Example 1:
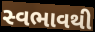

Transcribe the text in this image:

સ્વભાવથી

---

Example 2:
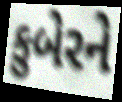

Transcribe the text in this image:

કુબેરને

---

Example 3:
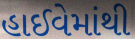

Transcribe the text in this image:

હાઈવેમાંથી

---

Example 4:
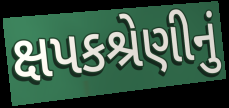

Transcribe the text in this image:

ક્ષપકશ્રેણીનું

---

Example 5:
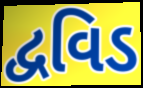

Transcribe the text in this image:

દ્વવિડ